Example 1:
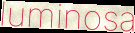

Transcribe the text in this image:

luminosa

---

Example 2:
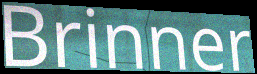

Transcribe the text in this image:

Brinner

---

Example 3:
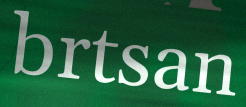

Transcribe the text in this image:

brtsan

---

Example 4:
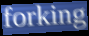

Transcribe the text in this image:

forking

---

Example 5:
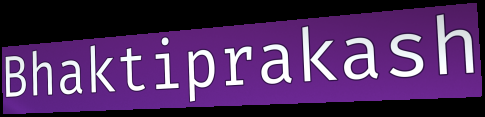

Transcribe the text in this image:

Bhaktiprakash